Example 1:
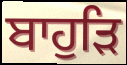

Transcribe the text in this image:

ਬਾਹੁੜਿ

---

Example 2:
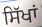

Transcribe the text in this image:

ਸਿੱਖਾਂ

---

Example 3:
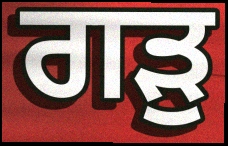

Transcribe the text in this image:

ਗੜੁ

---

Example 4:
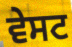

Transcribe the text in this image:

ਵੇਸਟ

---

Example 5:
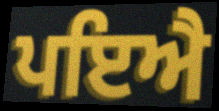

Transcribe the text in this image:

ਪਇਐ